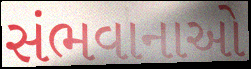
સંભવાનાઓ